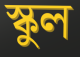
স্কুল